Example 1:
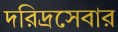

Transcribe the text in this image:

দরিদ্রসেবার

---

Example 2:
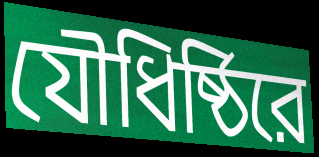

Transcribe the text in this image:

যৌধিষ্ঠিরে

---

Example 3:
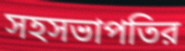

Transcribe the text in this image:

সহসভাপতির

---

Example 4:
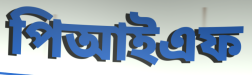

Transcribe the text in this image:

পিআইএফ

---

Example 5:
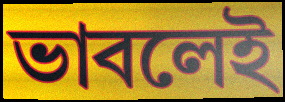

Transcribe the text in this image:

ভাবলেই